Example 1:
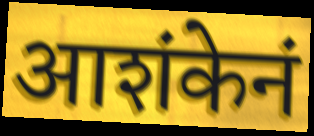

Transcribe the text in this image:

आशंकेनं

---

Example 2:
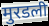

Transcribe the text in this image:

मुरडली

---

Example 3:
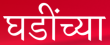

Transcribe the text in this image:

घडींच्या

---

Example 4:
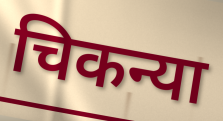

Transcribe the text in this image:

चिकन्या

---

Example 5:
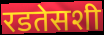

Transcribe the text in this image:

रडतेसशी